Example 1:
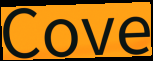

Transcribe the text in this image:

Cove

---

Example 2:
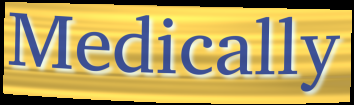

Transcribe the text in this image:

Medically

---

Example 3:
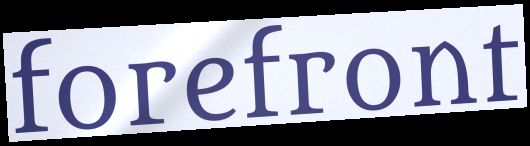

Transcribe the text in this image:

forefront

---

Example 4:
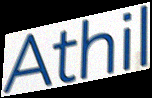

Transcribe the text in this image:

Athil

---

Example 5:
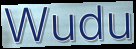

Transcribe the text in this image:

Wudu